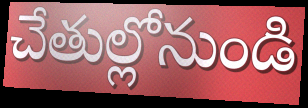
చేతుల్లోనుండి